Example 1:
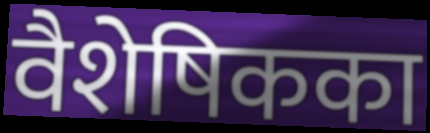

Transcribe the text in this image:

वैशेषिकका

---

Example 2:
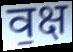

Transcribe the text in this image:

व॒क्ष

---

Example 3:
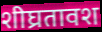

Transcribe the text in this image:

शीघ्रतावश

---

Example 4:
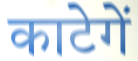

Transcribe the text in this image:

काटेगें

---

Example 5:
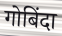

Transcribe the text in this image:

गोबिंदा